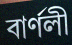
বাৰ্ণলী